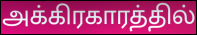
அக்கிரகாரத்தில்